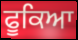
ਫੂਕਿਆ